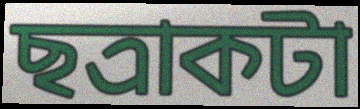
ছত্রাকটা